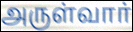
அருள்வார்